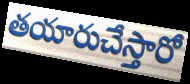
తయారుచేస్తారో